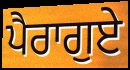
ਪੈਰਾਗੁਏ